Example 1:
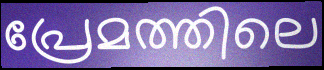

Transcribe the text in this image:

പ്രേമത്തിലെ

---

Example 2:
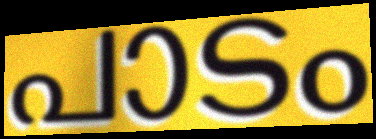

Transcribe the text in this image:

പാടം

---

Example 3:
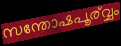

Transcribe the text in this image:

സന്തോഷപൂര്വ്വം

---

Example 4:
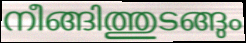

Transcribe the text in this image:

നീങ്ങിത്തുടങ്ങും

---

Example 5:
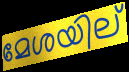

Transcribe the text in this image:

മേശയില്